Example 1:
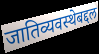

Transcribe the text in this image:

जातिव्यवस्थेबद्दल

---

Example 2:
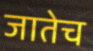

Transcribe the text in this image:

जातेच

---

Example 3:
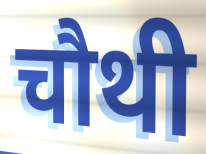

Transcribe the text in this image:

चौथी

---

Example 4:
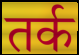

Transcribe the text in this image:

तर्क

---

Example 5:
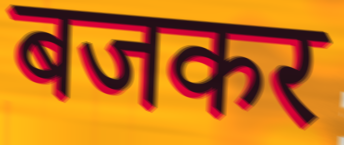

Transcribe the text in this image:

बजकर